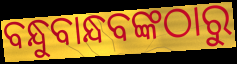
ବନ୍ଧୁବାନ୍ଧବଙ୍କଠାରୁ